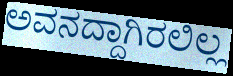
ಅವನದ್ದಾಗಿರಲಿಲ್ಲ